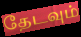
தேடவும்